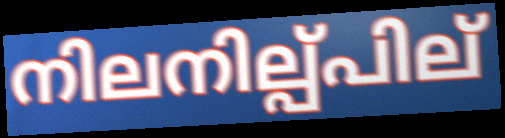
നിലനില്പ്പില്